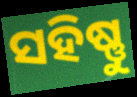
ସହିଷ୍ଣୁ